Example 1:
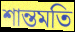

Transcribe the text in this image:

শান্তমতি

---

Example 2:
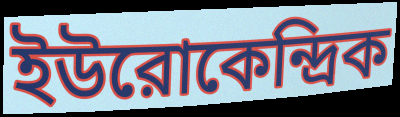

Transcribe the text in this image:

ইউরোকেন্দ্রিক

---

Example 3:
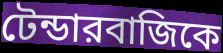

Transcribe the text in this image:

টেন্ডারবাজিকে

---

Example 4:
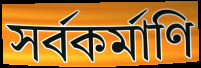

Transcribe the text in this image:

সর্বকর্মাণি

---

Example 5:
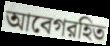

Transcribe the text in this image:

আবেগরহিত